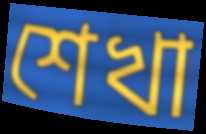
শেখা